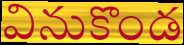
వినుకొండ